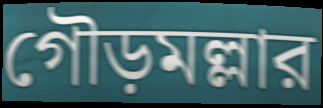
গৌড়মল্লার